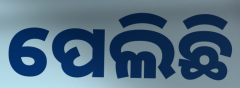
ପେଲିଛି